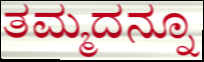
ತಮ್ಮದನ್ನೂ